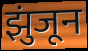
झुंजून